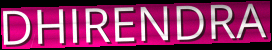
DHIRENDRA